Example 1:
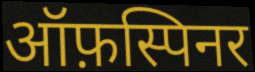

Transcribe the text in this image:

ऑफ़स्पिनर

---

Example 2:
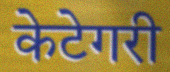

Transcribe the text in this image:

केटेगरी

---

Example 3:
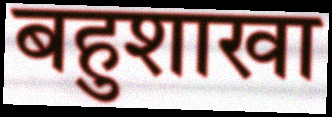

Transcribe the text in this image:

बहुशाखा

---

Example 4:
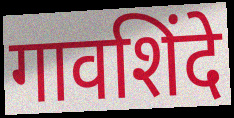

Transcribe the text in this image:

गावशिंदे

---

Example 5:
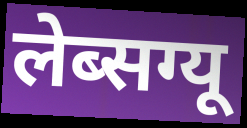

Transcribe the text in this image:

लेब्सग्यू